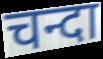
चन्दा